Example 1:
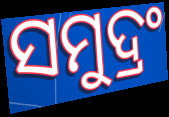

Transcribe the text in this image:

ସମୁଦ୍ରଂ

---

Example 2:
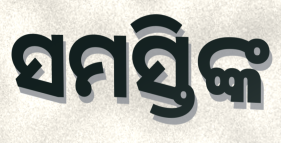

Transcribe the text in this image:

ସମସ୍ତିଙ୍କ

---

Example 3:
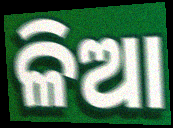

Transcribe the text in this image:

ଳିଆ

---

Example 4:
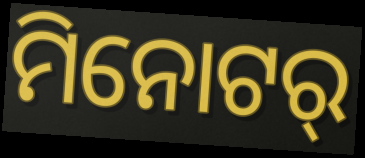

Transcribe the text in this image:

ମିନୋଟର୍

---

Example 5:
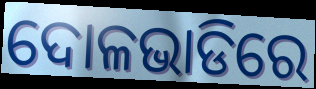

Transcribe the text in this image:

ଦୋଳଭାଡିରେ